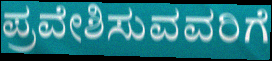
ಪ್ರವೇಶಿಸುವವರಿಗೆ